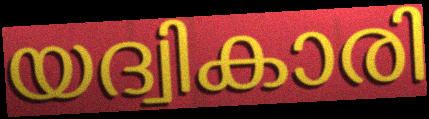
യദ്വികാരി